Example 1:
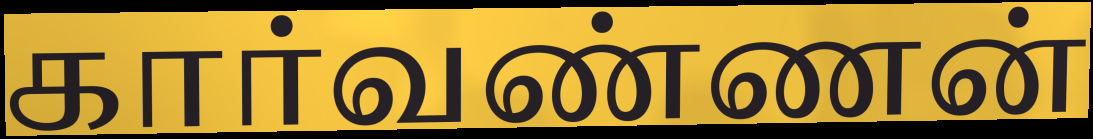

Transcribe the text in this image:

கார்வண்ணன்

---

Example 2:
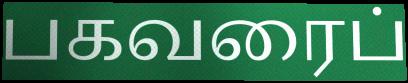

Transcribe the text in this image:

பகவரைப்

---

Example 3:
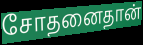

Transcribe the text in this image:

சோதனைதான்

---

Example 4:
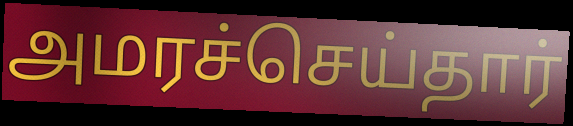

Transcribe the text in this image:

அமரச்செய்தார்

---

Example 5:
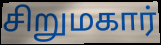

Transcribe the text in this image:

சிறுமகார்